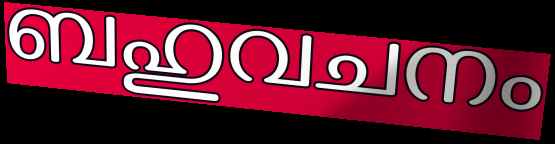
ബഹുവചനം